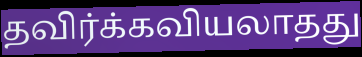
தவிர்க்கவியலாதது